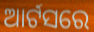
ଆର୍ଟସରେ